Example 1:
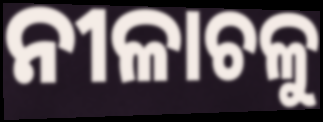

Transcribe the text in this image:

ନୀଳାଚଳୁ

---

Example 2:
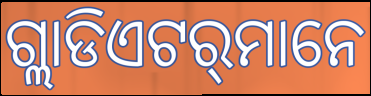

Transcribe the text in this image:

ଗ୍ଲାଡିଏଟର୍‍ମାନେ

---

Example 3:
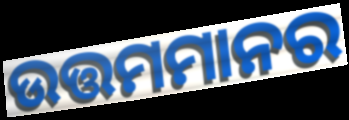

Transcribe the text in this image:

ଉତ୍ତମମାନର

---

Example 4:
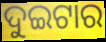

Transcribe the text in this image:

ଦୁଇଟାର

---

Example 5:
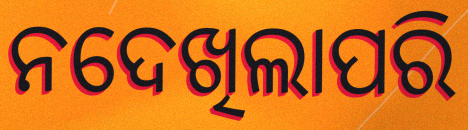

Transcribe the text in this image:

ନଦେଖିଲାପରି